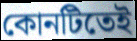
কোনটিতেই